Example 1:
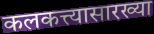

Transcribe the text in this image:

कलकत्त्यासारख्या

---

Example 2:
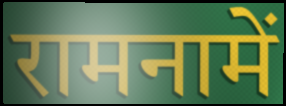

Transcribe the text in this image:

रामनामें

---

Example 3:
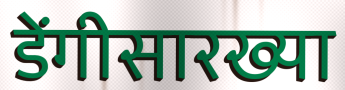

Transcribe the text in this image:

डेंगीसारख्या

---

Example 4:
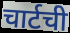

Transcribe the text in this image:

चार्टची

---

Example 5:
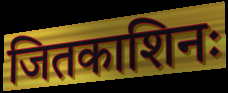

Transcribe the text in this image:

जितकाशिनः